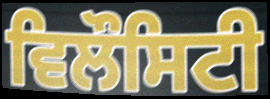
ਵਿਲੌਸਿਟੀ